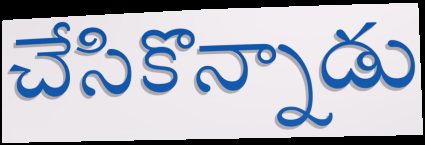
చేసికొన్నాడు